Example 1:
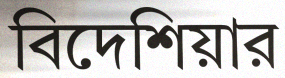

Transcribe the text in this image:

বিদেশিয়ার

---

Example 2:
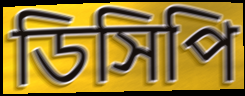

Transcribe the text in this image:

ডিসিপি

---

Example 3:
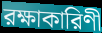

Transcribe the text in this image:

রক্ষাকারিণী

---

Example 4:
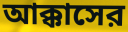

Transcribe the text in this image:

আক্কাসের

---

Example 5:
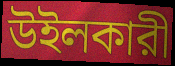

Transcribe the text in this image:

উইলকারী